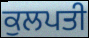
ਕੁਲਪਤੀ